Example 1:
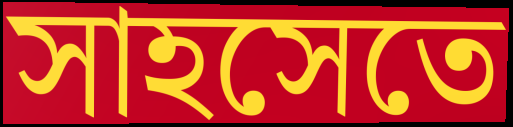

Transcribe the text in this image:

সাহসেতে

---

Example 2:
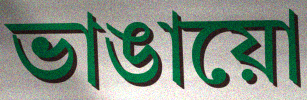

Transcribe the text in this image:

ভাঙায়ো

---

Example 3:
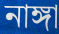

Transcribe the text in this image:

নাঙ্গা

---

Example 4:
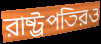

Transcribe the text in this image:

রাষ্ট্রপতিরও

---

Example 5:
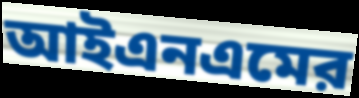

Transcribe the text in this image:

আইএনএমের